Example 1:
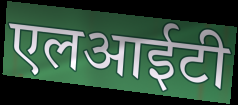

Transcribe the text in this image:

एलआईटी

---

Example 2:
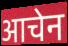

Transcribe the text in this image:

आचेन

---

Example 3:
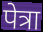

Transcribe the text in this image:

पेत्रा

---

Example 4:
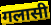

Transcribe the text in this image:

गलासी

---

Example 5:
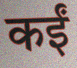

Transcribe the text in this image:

कईं